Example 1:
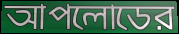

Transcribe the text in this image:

আপলোডের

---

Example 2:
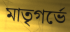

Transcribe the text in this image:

মাতৃগর্ভে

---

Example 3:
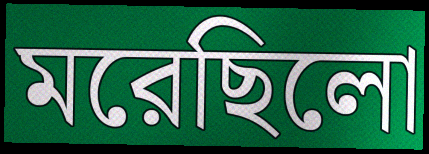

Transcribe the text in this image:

মরেছিলো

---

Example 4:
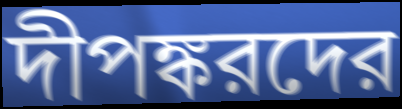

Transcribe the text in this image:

দীপঙ্করদের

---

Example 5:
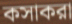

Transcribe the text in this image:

কসাকরা